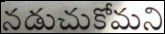
నడుచుకోమని